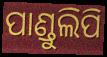
ପାଣ୍ଡୁଲିପି